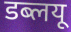
डब्लयू